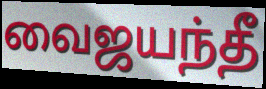
வைஜயந்தீ